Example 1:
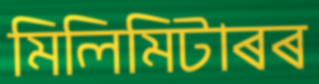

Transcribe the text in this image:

মিলিমিটাৰৰ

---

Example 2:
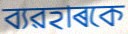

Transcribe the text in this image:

ব্যৱহাৰকে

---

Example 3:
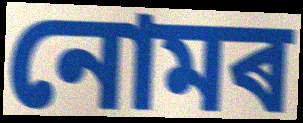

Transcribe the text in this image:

নোমৰ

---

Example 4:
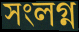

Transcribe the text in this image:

সংলগ্ন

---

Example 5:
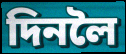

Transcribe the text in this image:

দিনলৈ